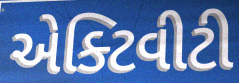
એક્ટિવીટી